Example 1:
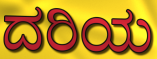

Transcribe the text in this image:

ದರಿಯ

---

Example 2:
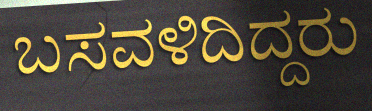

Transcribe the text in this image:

ಬಸವಳಿದಿದ್ದರು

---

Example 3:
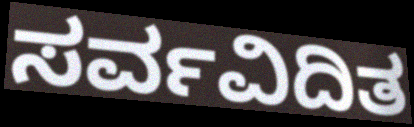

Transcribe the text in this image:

ಸರ್ವವಿದಿತ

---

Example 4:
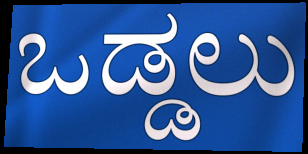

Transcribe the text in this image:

ಒಡ್ಡಲು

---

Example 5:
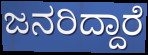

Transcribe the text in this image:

ಜನರಿದ್ದಾರೆ